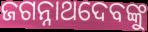
ଜଗନ୍ନାଥଦେବଙ୍କୁ